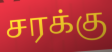
சரக்கு